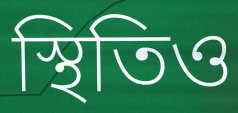
স্থিতিও